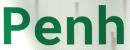
Penh